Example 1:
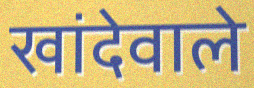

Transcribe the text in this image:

खांदेवाले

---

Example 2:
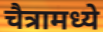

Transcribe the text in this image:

चैत्रामध्ये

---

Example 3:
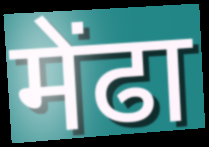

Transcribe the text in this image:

मेंढा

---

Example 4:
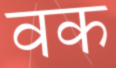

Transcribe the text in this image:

वक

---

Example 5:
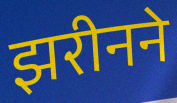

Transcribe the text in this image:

झरीनने